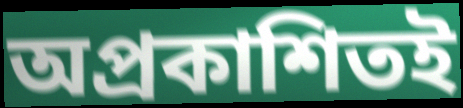
অপ্রকাশিতই